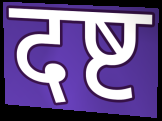
दष्ट